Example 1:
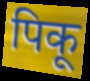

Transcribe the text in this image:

पिकू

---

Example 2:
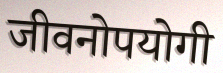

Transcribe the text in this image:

जीवनोपयोगी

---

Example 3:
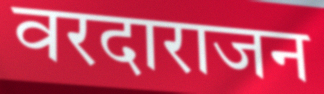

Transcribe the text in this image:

वरदाराजन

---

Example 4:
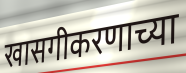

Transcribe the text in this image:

खासगीकरणाच्या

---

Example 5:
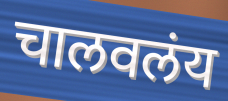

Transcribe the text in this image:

चालवलंय